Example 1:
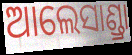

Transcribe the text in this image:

ଆଲେସାଣ୍ଡ୍ରା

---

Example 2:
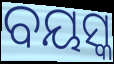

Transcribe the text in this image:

ବୟସ୍କ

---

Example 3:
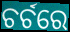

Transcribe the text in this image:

ଚର୍ଚରେ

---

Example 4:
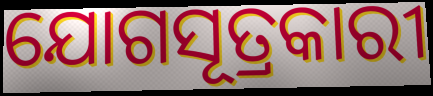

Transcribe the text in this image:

ଯୋଗସୂତ୍ରକାରୀ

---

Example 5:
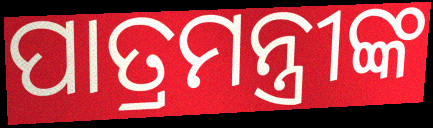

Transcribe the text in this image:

ପାତ୍ରମନ୍ତ୍ରୀଙ୍କ